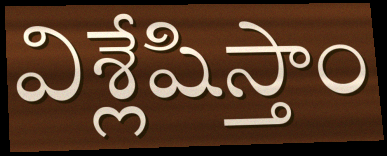
విశ్లేషిస్తాం